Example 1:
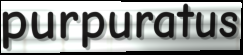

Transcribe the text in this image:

purpuratus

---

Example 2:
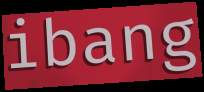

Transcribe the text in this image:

ibang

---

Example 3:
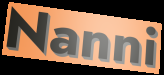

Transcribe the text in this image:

Nanni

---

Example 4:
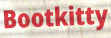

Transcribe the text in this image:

Bootkitty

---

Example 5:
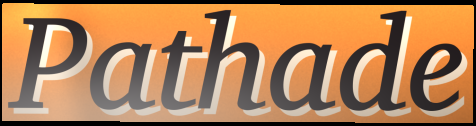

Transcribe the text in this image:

Pathade